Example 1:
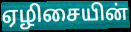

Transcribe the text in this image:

ஏழிசையின்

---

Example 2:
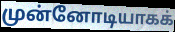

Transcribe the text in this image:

முன்னோடியாகக்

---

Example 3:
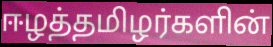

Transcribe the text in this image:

ஈழத்தமிழர்களின்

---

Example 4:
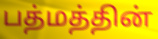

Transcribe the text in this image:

பத்மத்தின்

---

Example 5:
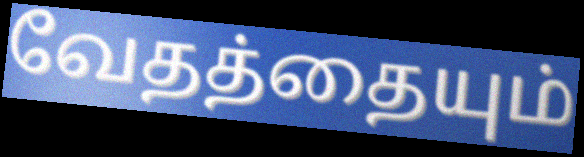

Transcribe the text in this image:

வேதத்தையும்